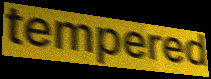
tempered